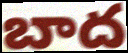
బాద